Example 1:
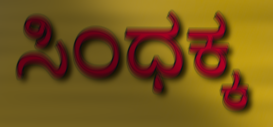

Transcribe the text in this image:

ಸಿಂಧಕ್ಕ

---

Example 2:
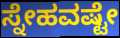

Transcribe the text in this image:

ಸ್ನೇಹವಷ್ಟೇ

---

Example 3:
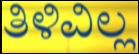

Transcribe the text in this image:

ತಿಳಿವಿಲ್ಲ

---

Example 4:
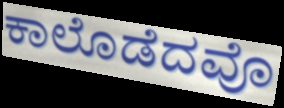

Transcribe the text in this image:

ಕಾಲೊಡೆದವೊ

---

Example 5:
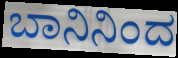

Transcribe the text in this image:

ಬಾನಿನಿಂದ